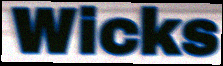
Wicks